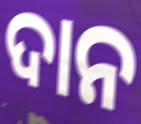
ଦାନ